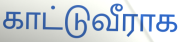
காட்டுவீராக